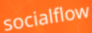
socialflow